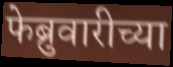
फेब्रुवारीच्या